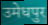
उमेधपुर